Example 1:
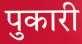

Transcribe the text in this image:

पुकारी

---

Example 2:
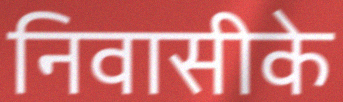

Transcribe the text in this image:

निवासीके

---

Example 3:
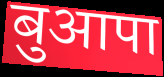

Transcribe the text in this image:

बुआपा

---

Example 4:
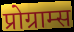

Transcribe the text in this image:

प्रोग्राम्स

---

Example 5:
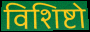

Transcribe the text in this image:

विशिष्टो